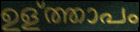
ഉള്ത്താപം